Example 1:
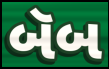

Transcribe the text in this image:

બૅબ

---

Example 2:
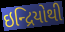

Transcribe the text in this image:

ઇન્દ્રિયોથી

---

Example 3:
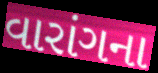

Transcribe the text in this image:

વારાંગના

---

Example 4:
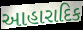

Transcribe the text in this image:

આહારાદિક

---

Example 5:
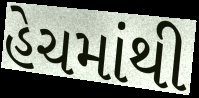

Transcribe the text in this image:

હેચમાંથી